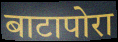
बाटापोरा